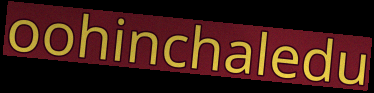
oohinchaledu